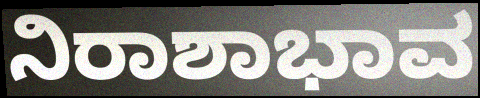
ನಿರಾಶಾಭಾವ